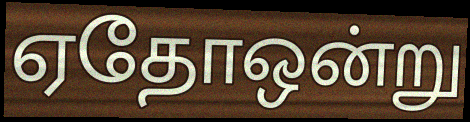
ஏதோஒன்று